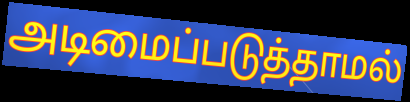
அடிமைப்படுத்தாமல்